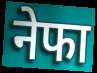
नेफा